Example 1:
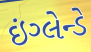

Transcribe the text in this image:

ઇંગ્લેન્ડે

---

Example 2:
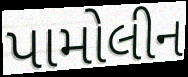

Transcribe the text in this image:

પામોલીન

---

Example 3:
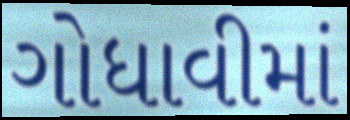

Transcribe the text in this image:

ગોધાવીમાં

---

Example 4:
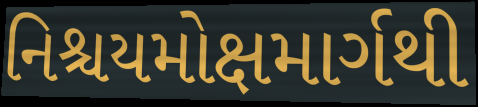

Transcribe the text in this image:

નિશ્ચયમોક્ષમાર્ગથી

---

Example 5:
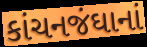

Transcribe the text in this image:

કાંચનજંઘાનાં